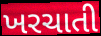
ખરચાતી